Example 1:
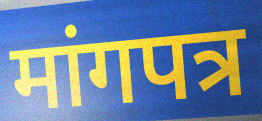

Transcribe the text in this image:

मांगपत्र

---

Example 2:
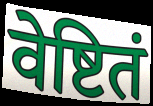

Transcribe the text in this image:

वेष्टितं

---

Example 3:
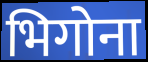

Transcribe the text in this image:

भिगोना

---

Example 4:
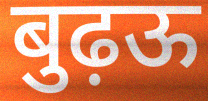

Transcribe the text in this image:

बुढ़ऊ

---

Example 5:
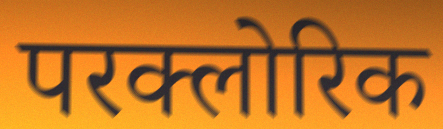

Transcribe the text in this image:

परक्लोरिक